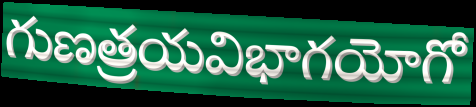
గుణత్రయవిభాగయోగో